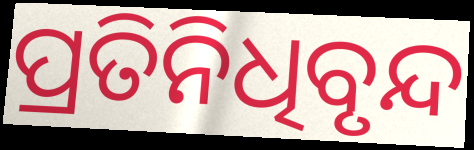
ପ୍ରତିନିଧିବୃନ୍ଦ